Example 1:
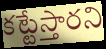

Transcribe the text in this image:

కట్టేస్తారని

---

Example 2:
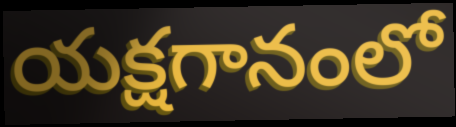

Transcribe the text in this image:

యక్షగానంలో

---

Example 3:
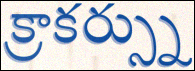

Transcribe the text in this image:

క్రాకర్స్ను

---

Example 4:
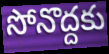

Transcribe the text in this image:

సోనొద్దకు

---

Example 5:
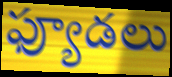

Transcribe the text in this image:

ఫ్యూడలు